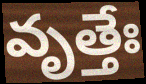
వృత్తేః